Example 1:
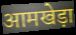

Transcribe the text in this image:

आमखेड़ा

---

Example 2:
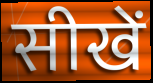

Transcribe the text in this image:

सीखें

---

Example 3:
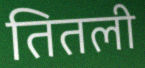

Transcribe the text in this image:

तितली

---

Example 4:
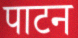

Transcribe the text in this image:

पाटन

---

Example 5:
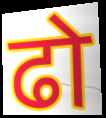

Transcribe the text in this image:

ढो